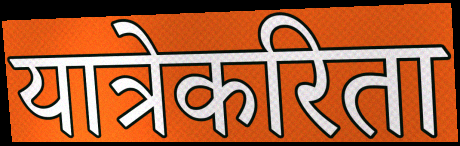
यात्रेकरिता